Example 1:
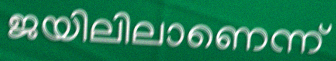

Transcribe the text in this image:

ജയിലിലാണെന്ന്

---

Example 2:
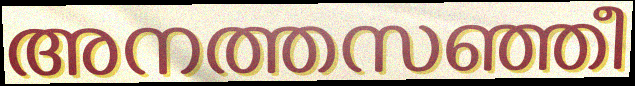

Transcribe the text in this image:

അനത്തസഞ്ഞീ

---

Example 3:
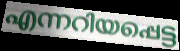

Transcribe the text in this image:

എന്നറിയപ്പെട്ട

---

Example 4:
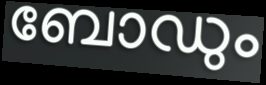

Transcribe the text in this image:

ബോഡും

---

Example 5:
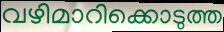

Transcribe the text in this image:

വഴിമാറിക്കൊടുത്ത